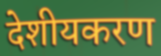
देशीयकरण